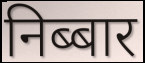
निब्बार